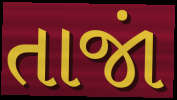
તાજાં